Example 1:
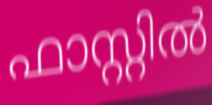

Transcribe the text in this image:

ഫാസ്റ്റിൽ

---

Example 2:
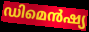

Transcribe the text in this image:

ഡിമെൻഷ്യ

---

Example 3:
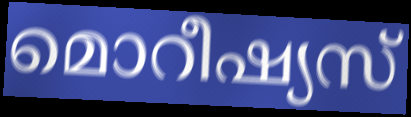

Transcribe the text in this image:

മൊറീഷ്യസ്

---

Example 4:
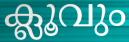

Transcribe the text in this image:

ക്ലൂവും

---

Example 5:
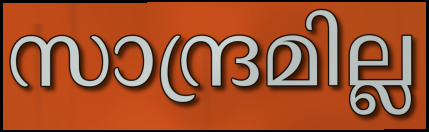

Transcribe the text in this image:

സാന്ദ്രമില്ല